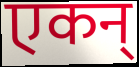
एकन्